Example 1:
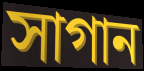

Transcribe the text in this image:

সাগান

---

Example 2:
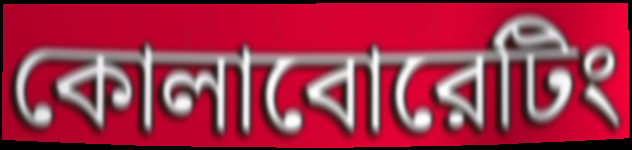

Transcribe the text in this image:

কোলাবোরেটিং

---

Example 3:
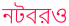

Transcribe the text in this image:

নটবরও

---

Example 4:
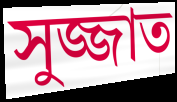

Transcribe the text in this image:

সুজ্জাত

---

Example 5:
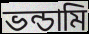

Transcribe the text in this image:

ভন্ডামি